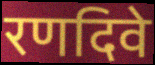
रणदिवे